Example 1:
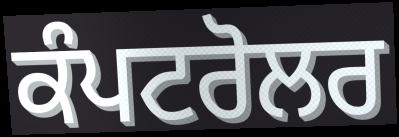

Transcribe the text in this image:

ਕੰਪਟਰੋਲਰ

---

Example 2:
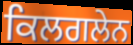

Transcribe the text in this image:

ਕਿਲਗਲੇਨ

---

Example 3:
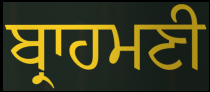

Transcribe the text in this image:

ਬ੍ਰਾਹਮਣੀ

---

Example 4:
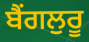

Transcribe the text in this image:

ਬੈਂਗਲੁਰੂ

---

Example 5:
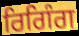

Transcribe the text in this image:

ਰਿਗਿੰਗ